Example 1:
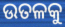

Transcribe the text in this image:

ଉତଳକୁ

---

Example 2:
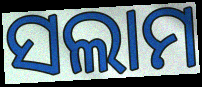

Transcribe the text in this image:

ସଲାମ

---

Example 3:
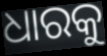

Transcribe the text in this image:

ଧାରକୁ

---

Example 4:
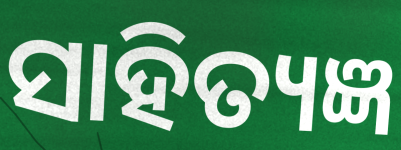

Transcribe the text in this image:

ସାହିତ୍ୟଜ୍ଞ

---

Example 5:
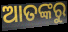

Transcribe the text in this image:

ଆତଙ୍କରୁ